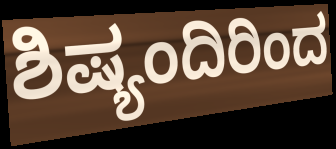
ಶಿಷ್ಯಂದಿರಿಂದ